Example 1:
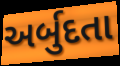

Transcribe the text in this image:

અર્બુદતા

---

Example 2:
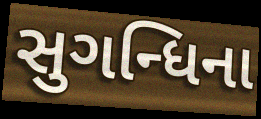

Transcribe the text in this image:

સુગન્ધિના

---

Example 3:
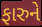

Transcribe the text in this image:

ફારુને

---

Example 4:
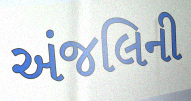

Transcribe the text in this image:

અંજલિની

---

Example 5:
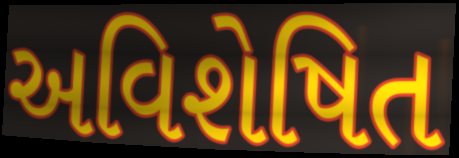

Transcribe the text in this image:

અવિશેષિત